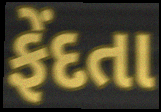
ફેંદતા